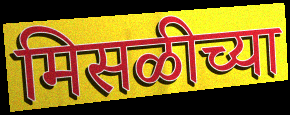
मिसळीच्या